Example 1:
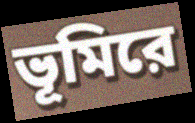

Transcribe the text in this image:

ভূমিরে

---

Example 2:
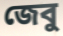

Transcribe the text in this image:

জেবু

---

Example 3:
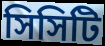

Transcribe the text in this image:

সিসিটি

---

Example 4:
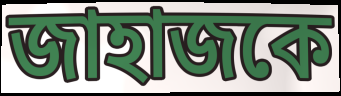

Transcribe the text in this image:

জাহাজকে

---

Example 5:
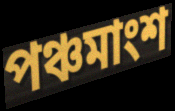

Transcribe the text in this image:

পঞ্চমাংশ